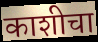
काशीचा